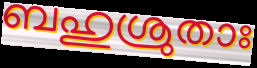
ബഹുശ്രുതാഃ